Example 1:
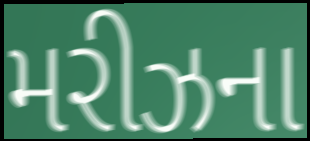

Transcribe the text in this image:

મરીઝના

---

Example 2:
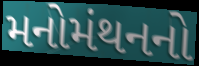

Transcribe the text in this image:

મનોમંથનનો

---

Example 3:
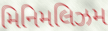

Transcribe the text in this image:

મિનિમલિઝમ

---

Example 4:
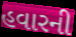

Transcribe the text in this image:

હવારની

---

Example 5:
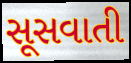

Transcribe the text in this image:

સૂસવાતી